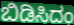
ಬಿಡಿಸಿದಂ